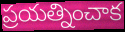
ప్రయత్నించాక